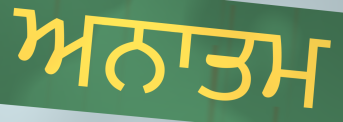
ਅਨਾਤਮ